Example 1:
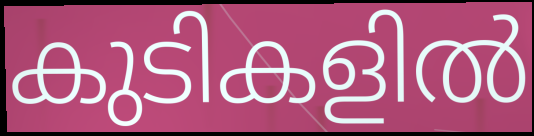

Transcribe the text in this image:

കുടികളിൽ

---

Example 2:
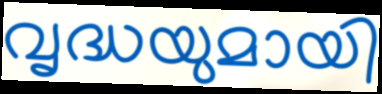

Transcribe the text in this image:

വൃദ്ധയുമായി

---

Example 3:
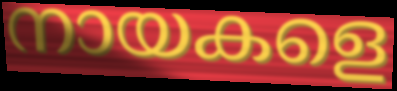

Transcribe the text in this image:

നായകളെ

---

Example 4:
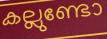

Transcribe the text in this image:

കല്ലുണ്ടോ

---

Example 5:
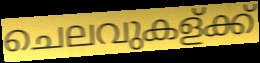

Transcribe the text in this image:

ചെലവുകള്ക്ക്